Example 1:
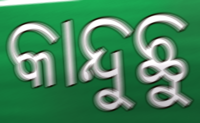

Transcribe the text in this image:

କାନ୍ଦୁଛୁ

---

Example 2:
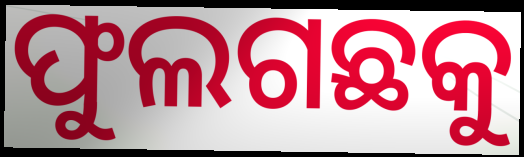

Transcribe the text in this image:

ଫୁଲଗଛକୁ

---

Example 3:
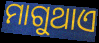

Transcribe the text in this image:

ମାଗୁଥାଏ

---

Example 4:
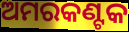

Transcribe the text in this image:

ଅମରକଣ୍ଟକ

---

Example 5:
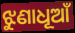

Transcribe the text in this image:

ଝୁଣାଧୂଆଁ